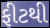
ફીટથી